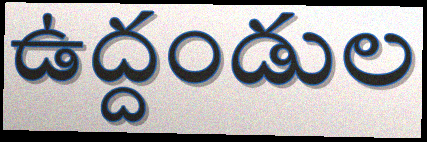
ఉద్దండుల